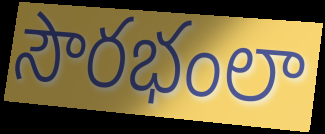
సౌరభంలా